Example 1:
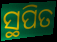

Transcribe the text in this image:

ସ୍ଥପିତ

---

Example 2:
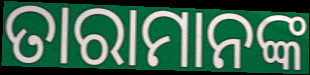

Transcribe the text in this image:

ତାରାମାନଙ୍କ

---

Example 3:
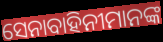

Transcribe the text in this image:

ସେନାବାହିନୀମାନଙ୍କ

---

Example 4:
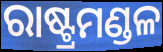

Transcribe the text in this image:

ରାଷ୍ଟ୍ରମଣ୍ଡଳ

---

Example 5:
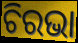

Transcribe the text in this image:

ଚିରଭା